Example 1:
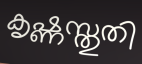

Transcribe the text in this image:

കൃഷ്ണസ്തുതി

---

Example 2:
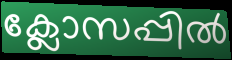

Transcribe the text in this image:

ക്ലോസപ്പിൽ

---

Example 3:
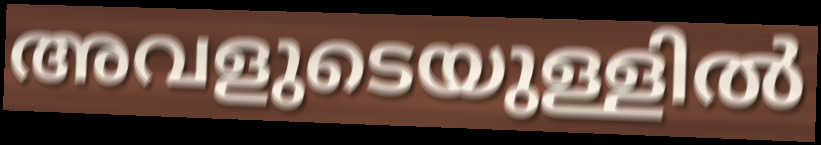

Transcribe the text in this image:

അവളുടെയുള്ളിൽ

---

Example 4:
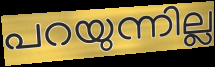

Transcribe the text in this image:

പറയുന്നില്ല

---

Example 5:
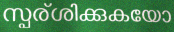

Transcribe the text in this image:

സ്പര്ശിക്കുകയോ